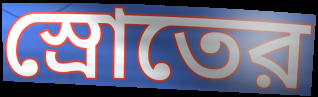
স্রোতের